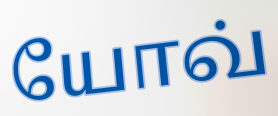
யோவ்